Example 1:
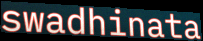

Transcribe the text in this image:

swadhinata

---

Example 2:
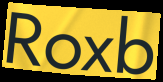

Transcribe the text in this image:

Roxb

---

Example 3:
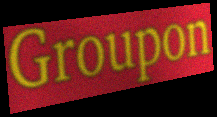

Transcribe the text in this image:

Groupon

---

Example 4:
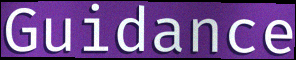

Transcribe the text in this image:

Guidance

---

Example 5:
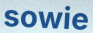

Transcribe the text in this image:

sowie